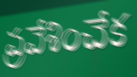
ప్రవేశించేక